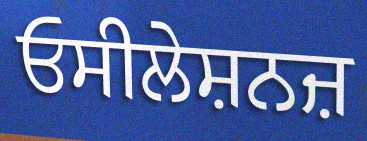
ਓਸੀਲੇਸ਼ਨਜ਼